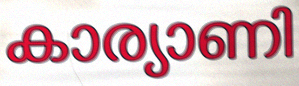
കാര്യാണി